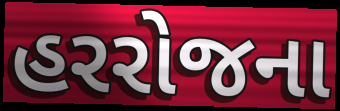
હરરોજના